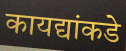
कायद्यांकडे